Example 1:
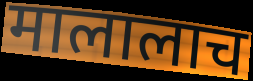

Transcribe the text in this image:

मालालाच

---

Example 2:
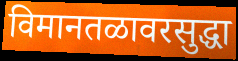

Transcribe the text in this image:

विमानतळावरसुद्धा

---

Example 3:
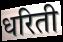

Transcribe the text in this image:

धरिती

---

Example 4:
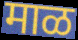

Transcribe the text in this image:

माळ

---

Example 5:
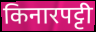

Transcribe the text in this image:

किनारपट्टी